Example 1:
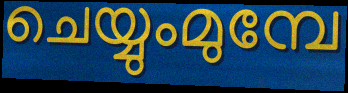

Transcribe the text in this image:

ചെയ്യുംമുമ്പേ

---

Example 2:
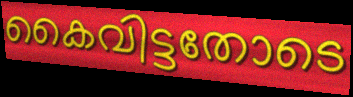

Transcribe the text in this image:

കൈവിട്ടതോടെ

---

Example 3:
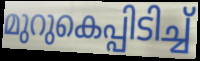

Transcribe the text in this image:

മുറുകെപ്പിടിച്ച്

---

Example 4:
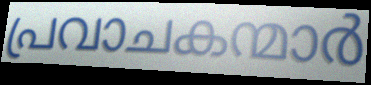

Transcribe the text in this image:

പ്രവാചകന്മാർ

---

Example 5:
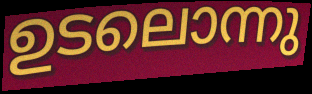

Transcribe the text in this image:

ഉടലൊന്നു